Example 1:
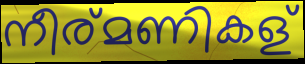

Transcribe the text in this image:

നീര്മണികള്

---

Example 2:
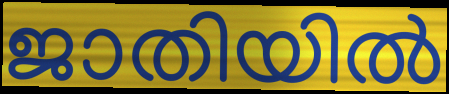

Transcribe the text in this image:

ജാതിയിൽ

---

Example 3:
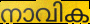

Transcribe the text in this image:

നാവിക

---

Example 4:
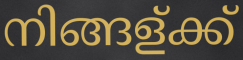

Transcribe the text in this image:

നിങ്ങള്ക്ക്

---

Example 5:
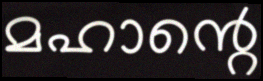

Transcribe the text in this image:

മഹാന്റെ